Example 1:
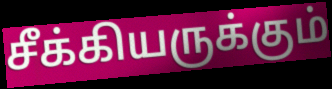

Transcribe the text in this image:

சீக்கியருக்கும்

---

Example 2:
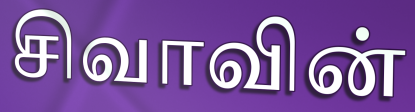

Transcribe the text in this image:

சிவாவின்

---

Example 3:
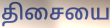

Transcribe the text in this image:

திசையை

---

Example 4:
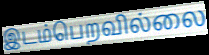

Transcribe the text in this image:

இடம்பெறவில்லை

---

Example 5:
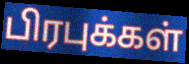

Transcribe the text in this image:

பிரபுக்கள்